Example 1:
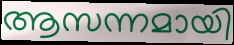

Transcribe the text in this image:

ആസന്നമായി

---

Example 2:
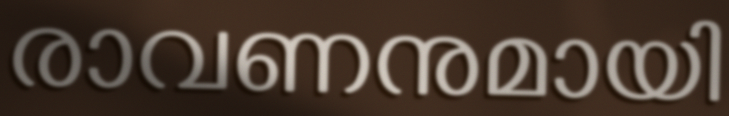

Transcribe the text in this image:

രാവണനുമായി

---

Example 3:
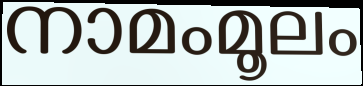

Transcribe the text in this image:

നാമംമൂലം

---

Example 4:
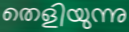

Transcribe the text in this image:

തെളിയുന്നു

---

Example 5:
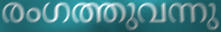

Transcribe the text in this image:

രംഗത്തുവന്നു